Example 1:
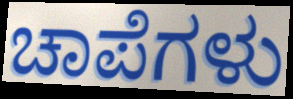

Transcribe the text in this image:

ಚಾಪೆಗಳು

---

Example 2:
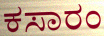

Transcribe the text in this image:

ಕಸಾರಂ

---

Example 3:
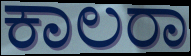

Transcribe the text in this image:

ಕಾಲರಾ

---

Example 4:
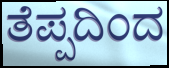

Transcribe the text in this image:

ತೆಪ್ಪದಿಂದ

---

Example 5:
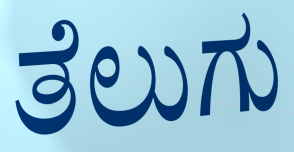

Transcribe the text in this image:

ತೆಲುಗು